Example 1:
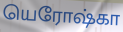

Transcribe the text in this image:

யெரோஷ்கா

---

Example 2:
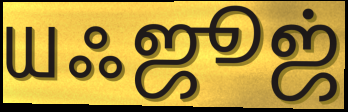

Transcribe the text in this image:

யஃஜூஜ்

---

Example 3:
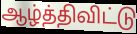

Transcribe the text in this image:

ஆழ்த்திவிட்டு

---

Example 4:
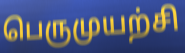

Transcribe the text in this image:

பெருமுயற்சி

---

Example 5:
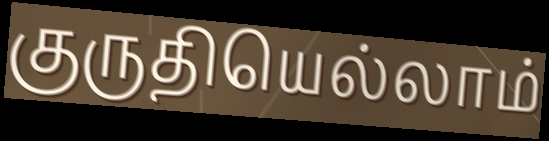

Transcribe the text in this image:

குருதியெல்லாம்